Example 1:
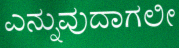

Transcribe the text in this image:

ಎನ್ನುವುದಾಗಲೀ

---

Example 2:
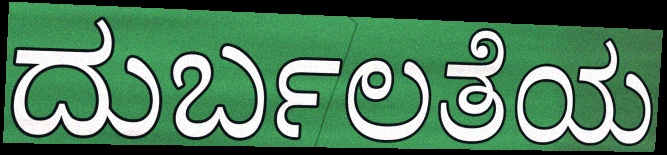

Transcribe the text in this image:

ದುರ್ಬಲತೆಯ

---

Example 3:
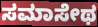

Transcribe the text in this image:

ಸಮಾಸೇಥ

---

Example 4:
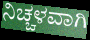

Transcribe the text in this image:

ನಿಚ್ಚಳವಾಗಿ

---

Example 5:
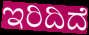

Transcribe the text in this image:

ಇರಿದಿದೆ